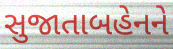
સુજાતાબહેનને